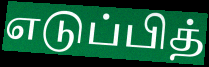
எடுப்பித்